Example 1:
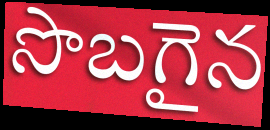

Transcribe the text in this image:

సొబగైన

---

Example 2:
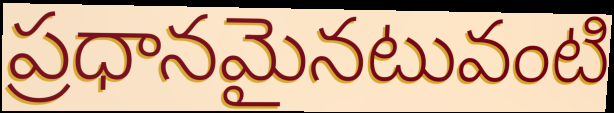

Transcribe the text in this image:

ప్రధానమైనటువంటి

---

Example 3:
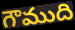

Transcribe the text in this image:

గౌముది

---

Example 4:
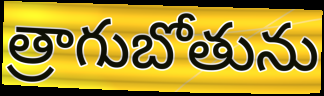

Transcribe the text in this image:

త్రాగుబోతును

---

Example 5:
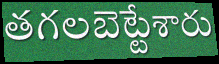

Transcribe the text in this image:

తగలబెట్టేశారు